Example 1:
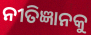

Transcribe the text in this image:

ନୀତିଜ୍ଞାନକୁ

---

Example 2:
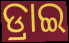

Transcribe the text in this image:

ଡ୍ରାଇ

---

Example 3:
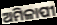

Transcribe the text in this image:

ଅମିଳାପୀ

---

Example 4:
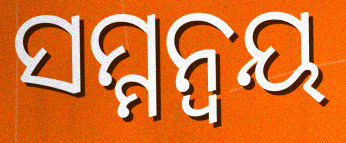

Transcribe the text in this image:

ସମ୍ମନ୍ୱୟ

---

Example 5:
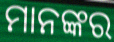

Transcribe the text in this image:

ମାନଙ୍କର